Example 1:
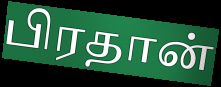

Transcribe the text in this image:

பிரதான்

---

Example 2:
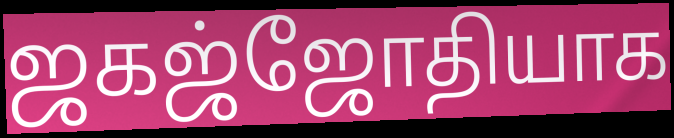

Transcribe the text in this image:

ஜகஜ்ஜோதியாக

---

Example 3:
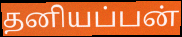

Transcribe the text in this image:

தனியப்பன்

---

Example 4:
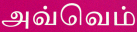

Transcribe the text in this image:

அவ்வெம்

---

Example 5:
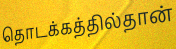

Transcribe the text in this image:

தொடக்கத்தில்தான்